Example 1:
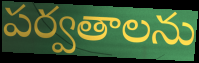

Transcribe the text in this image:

పర్వతాలను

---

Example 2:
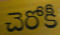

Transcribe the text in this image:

చెరోకీ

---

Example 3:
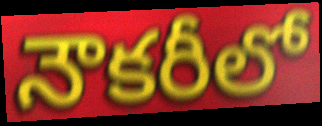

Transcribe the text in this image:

నౌకరీలో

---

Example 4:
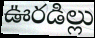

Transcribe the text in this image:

ఊరడిల్లు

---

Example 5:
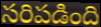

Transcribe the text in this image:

సరిపడింది